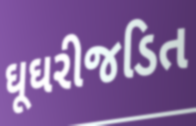
ઘૂઘરીજડિત